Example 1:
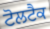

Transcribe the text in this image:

ਟੋਲਟੈਕ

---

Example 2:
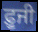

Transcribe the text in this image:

ਫ਼ੂਜੀ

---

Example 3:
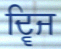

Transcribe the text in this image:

ਦ੍ਵਿਜ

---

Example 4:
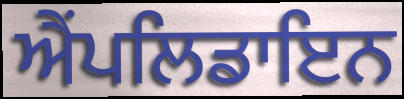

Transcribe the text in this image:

ਐੰਪਲਿਡਾਇਨ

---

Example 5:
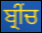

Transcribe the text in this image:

ਬ੍ਰੀਂਚ